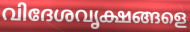
വിദേശവൃക്ഷങ്ങളെ